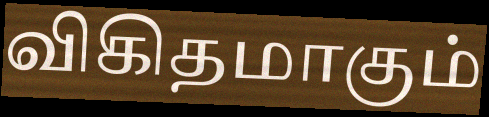
விகிதமாகும்